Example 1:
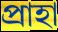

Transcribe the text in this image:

প্রাহা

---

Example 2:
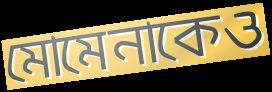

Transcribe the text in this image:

মোমেনাকেও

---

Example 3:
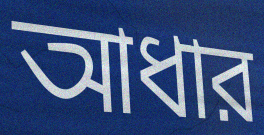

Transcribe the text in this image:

আধার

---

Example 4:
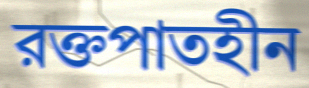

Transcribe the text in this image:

রক্তপাতহীন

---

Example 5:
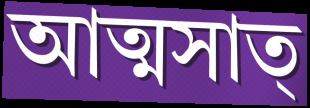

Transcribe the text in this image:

আত্মসাত্